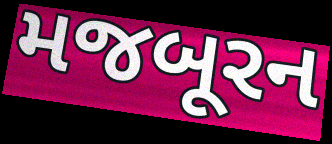
મજબૂરન